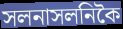
সলনাসলনিকৈ